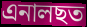
এনালছত